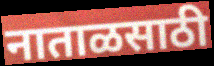
नाताळसाठी